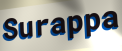
Surappa